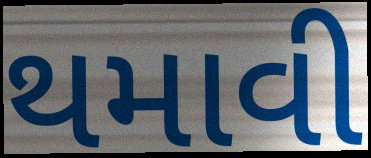
થમાવી